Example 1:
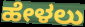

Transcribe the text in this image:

ಹೇಳಲು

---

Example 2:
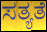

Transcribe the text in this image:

ಸತ್ಯತೆ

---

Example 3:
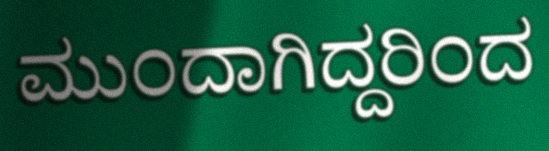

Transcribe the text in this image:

ಮುಂದಾಗಿದ್ದರಿಂದ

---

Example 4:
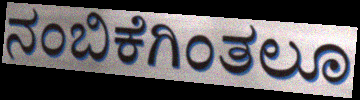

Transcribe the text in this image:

ನಂಬಿಕೆಗಿಂತಲೂ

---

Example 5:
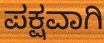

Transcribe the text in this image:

ಪಕ್ಷವಾಗಿ